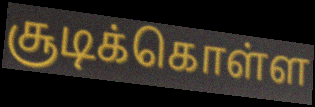
சூடிக்கொள்ள